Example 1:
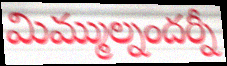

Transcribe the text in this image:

మిమ్ముల్నందర్నీ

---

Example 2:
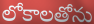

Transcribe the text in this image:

లోకాలతోను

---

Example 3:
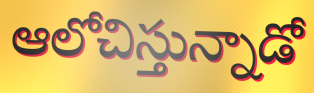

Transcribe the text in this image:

ఆలోచిస్తున్నాడో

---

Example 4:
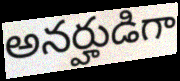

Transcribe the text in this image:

అనర్హుడిగా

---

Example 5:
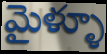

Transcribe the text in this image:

మైళ్ళూ